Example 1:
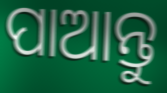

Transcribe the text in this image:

ପାଆନ୍ତୁ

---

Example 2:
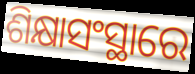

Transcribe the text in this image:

ଶିକ୍ଷାସଂସ୍ଥାରେ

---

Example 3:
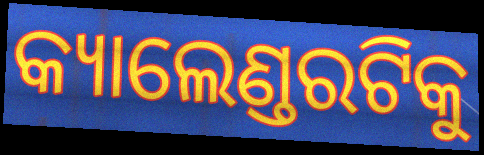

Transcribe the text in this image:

କ୍ୟାଲେଣ୍ଡରଟିକୁ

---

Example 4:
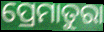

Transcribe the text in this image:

ପ୍ରେମାତୁରା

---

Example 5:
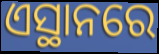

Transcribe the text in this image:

ଏସ୍ଥାନରେ